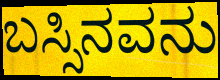
ಬಸ್ಸಿನವನು